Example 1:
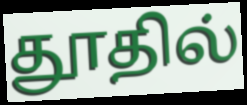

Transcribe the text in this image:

தூதில்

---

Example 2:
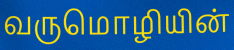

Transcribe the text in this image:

வருமொழியின்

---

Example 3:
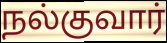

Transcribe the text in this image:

நல்குவார்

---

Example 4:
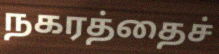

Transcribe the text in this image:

நகரத்தைச்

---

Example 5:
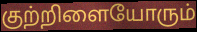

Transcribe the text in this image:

குற்றிளையோரும்